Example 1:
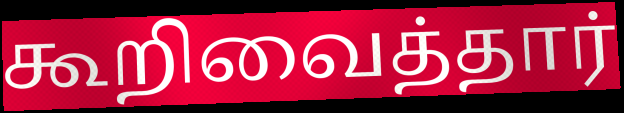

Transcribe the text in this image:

கூறிவைத்தார்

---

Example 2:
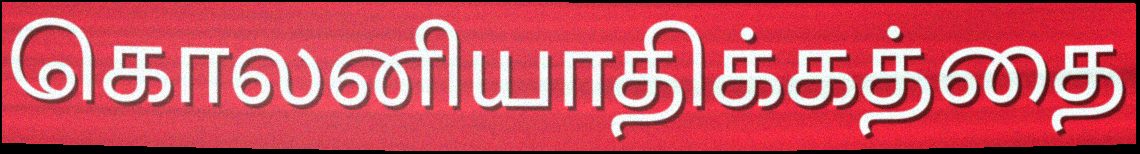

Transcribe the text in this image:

கொலனியாதிக்கத்தை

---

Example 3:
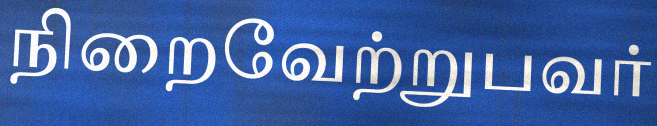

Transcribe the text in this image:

நிறைவேற்றுபவர்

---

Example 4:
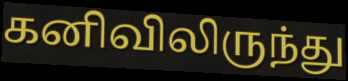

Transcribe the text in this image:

கனிவிலிருந்து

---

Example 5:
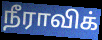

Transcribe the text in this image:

நீராவிக்